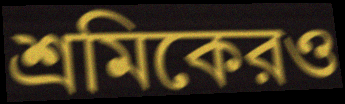
শ্রমিকেরও